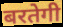
बरतेगी